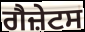
ਗੈਜ਼ੇਟਸ